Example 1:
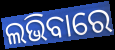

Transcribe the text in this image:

ଲଭିବାରେ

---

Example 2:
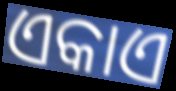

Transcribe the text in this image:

ଏକାଏ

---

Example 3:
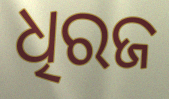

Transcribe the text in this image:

ଧିରଜ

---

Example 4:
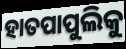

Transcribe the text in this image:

ହାତପାପୁଲିକୁ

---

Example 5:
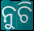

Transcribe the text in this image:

ନୁଚି